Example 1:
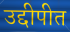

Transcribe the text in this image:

उद्दीपीत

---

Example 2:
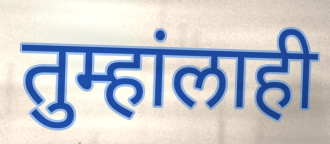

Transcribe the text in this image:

तुम्हांलाही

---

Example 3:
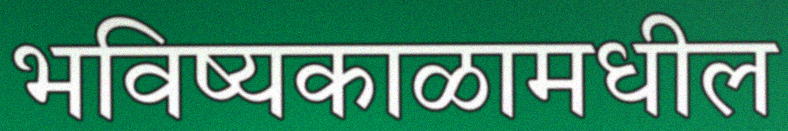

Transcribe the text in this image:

भविष्यकाळामधील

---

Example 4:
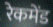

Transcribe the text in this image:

रेकमेंड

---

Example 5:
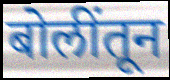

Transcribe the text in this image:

बोलींतून